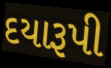
દયારૂપી